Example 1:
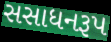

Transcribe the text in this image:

સસાધનરૂપ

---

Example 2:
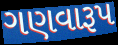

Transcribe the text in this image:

ગણવારૂપ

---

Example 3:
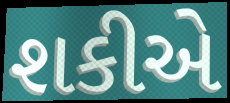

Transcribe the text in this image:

શકીએ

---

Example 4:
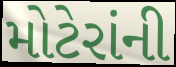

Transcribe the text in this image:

મોટેરાંની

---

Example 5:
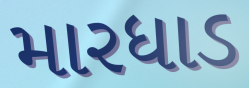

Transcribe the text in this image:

મારધાડ